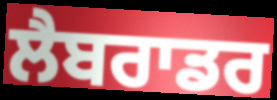
ਲੈਬਰਾਡਰ